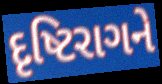
દૃષ્ટિરાગને